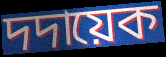
দদায়েক